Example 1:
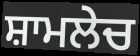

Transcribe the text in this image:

ਸ਼ਾਮਲੇਚ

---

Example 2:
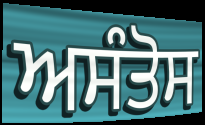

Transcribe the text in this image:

ਅਸੰਤੋਸ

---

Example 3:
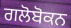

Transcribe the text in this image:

ਗਲੋਬੋਕਨ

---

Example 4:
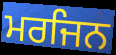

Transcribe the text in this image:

ਮਰਜਿਨ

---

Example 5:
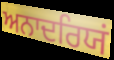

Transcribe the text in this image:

ਅਨਾਦਰਿਯਂ